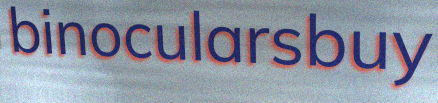
binocularsbuy